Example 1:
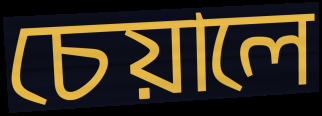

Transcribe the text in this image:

চেয়ালে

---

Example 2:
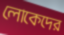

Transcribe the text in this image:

লোকেদের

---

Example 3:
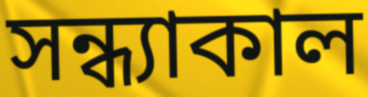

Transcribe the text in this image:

সন্ধ্যাকাল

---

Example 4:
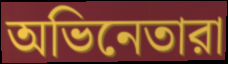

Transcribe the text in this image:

অভিনেতারা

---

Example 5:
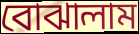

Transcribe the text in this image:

বোঝালাম